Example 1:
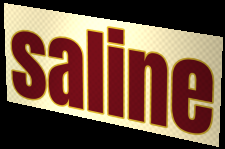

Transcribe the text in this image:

saline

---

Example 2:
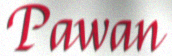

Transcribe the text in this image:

Pawan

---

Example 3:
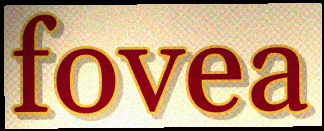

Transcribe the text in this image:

fovea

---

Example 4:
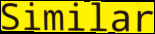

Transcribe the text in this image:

Similar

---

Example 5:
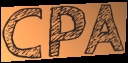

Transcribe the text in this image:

CPA